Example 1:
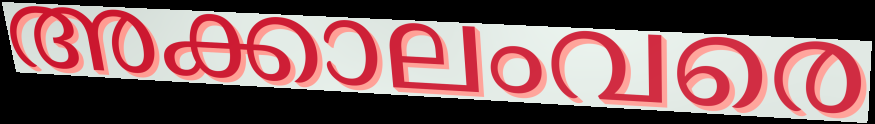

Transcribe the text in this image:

അക്കാലംവരെ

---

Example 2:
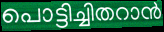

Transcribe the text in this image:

പൊട്ടിച്ചിതറാൻ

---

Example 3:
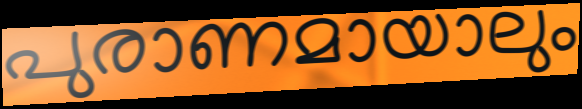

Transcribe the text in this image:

പുരാണമായാലും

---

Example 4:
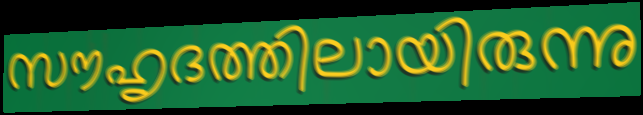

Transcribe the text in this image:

സൗഹൃദത്തിലായിരുന്നു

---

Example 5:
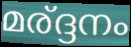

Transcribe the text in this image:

മര്ദ്ദനം